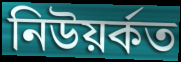
নিউয়ৰ্কত